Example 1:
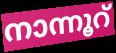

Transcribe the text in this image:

നാന്നൂറ്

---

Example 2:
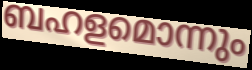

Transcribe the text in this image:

ബഹളമൊന്നും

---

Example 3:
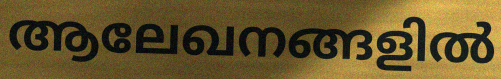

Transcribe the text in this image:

ആലേഖനങ്ങളിൽ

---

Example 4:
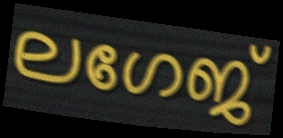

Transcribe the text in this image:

ലഗേജ്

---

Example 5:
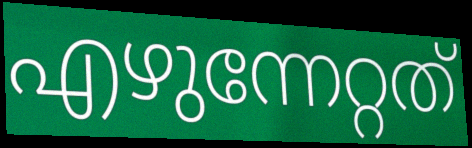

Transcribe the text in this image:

എഴുന്നേറ്റത്